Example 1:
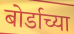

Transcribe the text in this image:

बोर्डाच्या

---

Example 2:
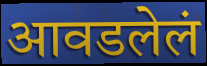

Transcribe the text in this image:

आवडलेलं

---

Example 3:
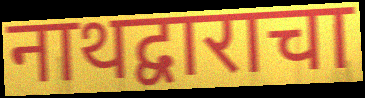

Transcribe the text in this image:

नाथद्वाराचा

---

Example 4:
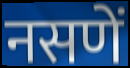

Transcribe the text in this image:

नसणें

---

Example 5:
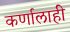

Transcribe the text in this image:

कर्णालाही